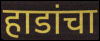
हाडांचा